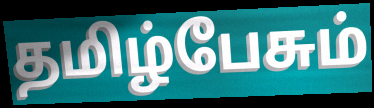
தமிழ்பேசும்